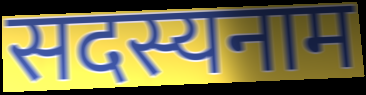
सदस्यनाम